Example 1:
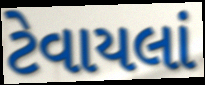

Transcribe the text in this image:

ટેવાયલાં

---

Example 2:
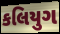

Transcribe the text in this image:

કલિયુગ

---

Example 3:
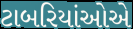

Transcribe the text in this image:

ટાબરિયાંઓએ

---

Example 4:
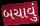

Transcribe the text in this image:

બચાવું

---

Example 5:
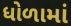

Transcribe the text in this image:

ધોળામાં